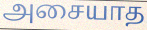
அசையாத